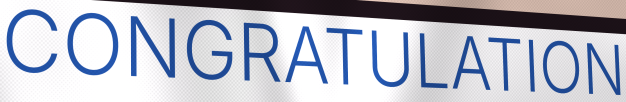
CONGRATULATION